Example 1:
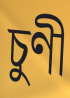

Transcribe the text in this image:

চুণী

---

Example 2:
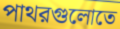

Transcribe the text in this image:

পাথরগুলোতে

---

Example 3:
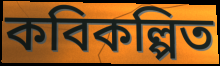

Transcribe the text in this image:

কবিকল্পিত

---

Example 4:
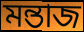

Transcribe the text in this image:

মন্তাজ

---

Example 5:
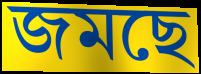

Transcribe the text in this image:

জমছে